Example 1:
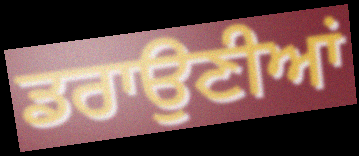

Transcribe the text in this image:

ਡਰਾਉਣੀਆਂ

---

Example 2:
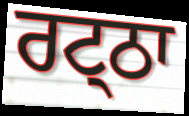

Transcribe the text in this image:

ਰਟ੍ਠਾ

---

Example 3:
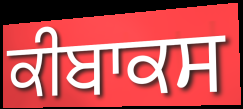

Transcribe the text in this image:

ਕੀਬਾਕਸ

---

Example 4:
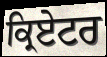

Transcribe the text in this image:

ਕ੍ਰਿਏਟਰ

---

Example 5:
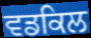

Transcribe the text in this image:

ਵਡਕਿਲ